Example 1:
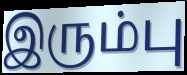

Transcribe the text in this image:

இரும்பு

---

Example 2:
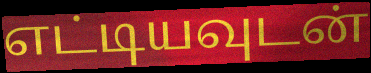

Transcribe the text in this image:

எட்டியவுடன்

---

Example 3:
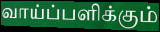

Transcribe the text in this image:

வாய்ப்பளிக்கும்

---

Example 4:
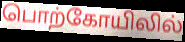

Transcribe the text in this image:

பொற்கோயிலில்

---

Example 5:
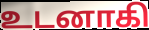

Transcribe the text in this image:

உடனாகி